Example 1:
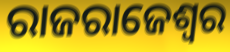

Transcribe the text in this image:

ରାଜରାଜେଶ୍ଵର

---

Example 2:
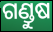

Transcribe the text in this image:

ଗଣ୍ଡୁଷ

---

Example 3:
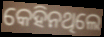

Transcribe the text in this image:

କେହିନଥିଲେ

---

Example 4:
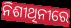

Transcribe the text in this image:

ନିଶୀଥିନୀରେ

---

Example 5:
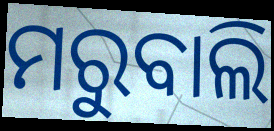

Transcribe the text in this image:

ମରୁବାଲି